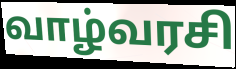
வாழ்வரசி